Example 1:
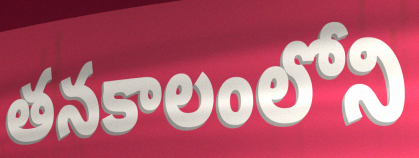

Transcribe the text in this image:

తనకాలంలోని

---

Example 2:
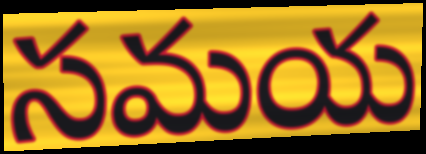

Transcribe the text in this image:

సమయ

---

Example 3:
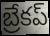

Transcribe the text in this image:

బ్రేకప్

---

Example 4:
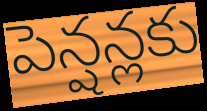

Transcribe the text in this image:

పెన్షన్లకు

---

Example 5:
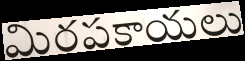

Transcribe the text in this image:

మిరపకాయలు